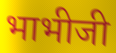
भाभीजी